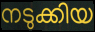
നടുക്കിയ